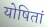
योषितां